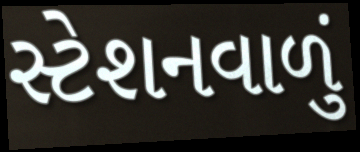
સ્ટેશનવાળું